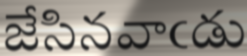
జేసినవాఁడు